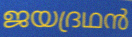
ജയദ്രഥൻ